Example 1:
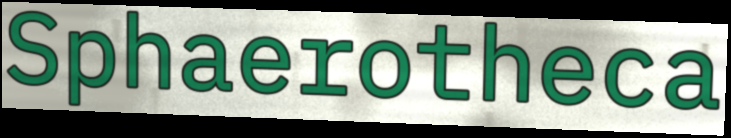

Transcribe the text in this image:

Sphaerotheca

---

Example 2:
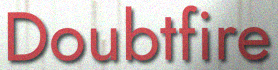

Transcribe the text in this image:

Doubtfire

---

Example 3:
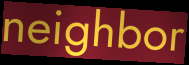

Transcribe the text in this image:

neighbor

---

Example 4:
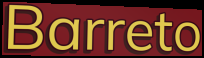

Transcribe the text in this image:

Barreto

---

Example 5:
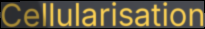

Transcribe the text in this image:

Cellularisation